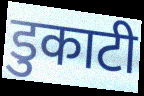
डुकाटी